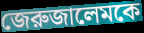
জেরুজালেমকে